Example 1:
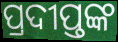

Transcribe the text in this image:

ପ୍ରଦୀପ୍ତଙ୍କ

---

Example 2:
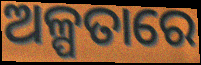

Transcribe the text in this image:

ଅଳ୍ପତାରେ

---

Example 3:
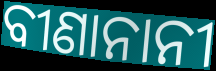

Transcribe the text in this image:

ବୀଣାନାନୀ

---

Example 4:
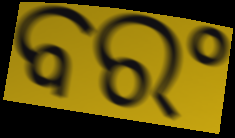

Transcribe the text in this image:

ବରଂ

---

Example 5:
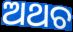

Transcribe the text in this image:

ଅଥଚ